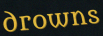
drowns